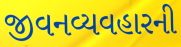
જીવનવ્યવહારની